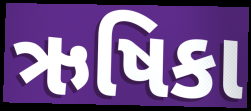
ઋષિકા